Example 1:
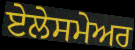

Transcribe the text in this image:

ਏਲੇਸਮੇਅਰ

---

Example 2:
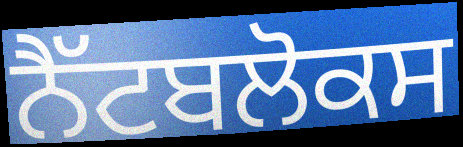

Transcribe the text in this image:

ਨੈੱਟਬਲੋਕਸ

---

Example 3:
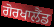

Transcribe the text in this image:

ਗੋਰਖਾਲੈਂਡ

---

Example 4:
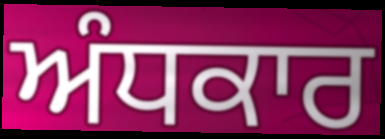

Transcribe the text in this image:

ਅੰਧਕਾਰ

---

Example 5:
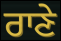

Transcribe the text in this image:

ਰਾਣੇ